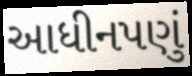
આધીનપણું